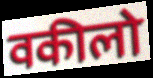
वकीलो